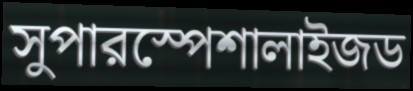
সুপারস্পেশালাইজড